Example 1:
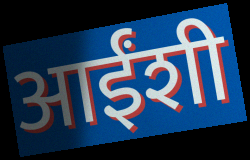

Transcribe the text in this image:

आईंशी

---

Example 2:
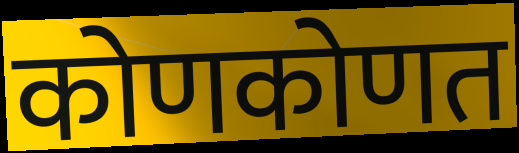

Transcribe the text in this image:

कोणकोणत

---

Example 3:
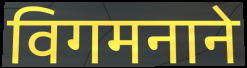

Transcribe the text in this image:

विगमनाने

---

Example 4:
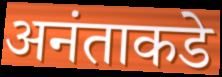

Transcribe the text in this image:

अनंताकडे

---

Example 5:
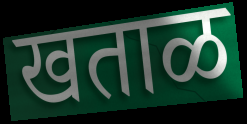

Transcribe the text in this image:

खताळ